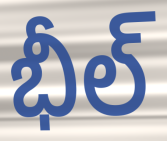
భీల్